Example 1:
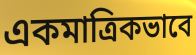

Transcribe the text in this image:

একমাত্রিকভাবে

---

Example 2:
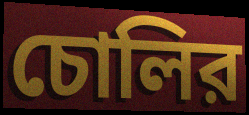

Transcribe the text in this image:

চোলির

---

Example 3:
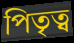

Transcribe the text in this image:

পিতৃত্ব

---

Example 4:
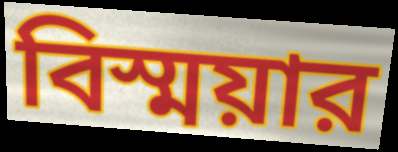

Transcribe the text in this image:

বিস্ময়ার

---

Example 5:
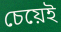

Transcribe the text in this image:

চেয়েই